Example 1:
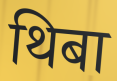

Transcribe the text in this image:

थिबा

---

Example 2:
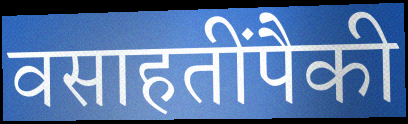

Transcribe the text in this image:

वसाहतींपैकी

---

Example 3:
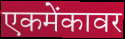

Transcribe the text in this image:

एकमेंकावर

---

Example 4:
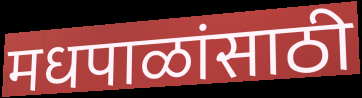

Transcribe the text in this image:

मधपाळांसाठी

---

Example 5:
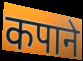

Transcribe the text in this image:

कपाने